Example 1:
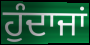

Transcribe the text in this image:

ਹੁੰਦਾਜਾਂ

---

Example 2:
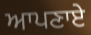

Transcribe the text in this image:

ਆਪਣਾਏ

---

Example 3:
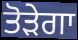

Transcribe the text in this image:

ਤੋੜੇਗਾ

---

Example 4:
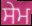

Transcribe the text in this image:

ਸੇਮ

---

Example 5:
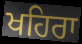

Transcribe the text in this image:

ਖਹਿਰਾ